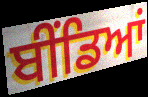
ਬੀਂਡਿਆਂ